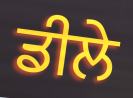
ਡੀਲੇ